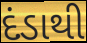
દંડાથી